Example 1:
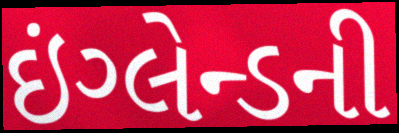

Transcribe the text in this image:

ઇંગ્લેન્ડની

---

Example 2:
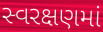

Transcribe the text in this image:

સ્વરક્ષણમાં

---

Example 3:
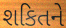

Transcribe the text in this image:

શકિતને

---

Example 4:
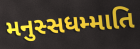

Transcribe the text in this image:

મનુસ્સધમ્માતિ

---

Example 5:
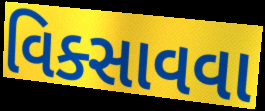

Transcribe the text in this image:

વિક્સાવવા